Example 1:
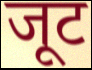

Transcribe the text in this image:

जूट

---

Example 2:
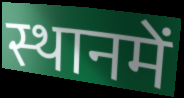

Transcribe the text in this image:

स्थानमें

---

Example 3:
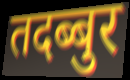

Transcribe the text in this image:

तदब्बुर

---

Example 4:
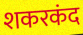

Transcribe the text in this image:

शकरकंद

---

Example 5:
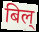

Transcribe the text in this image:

बिल्